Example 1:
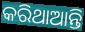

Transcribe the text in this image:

କରିଥାଆନ୍ତି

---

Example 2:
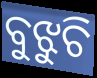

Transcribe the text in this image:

ବୁଝୁଚି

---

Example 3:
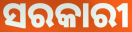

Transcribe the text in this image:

ସରକାରୀ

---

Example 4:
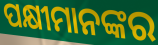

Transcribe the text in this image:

ପକ୍ଷୀମାନଙ୍କର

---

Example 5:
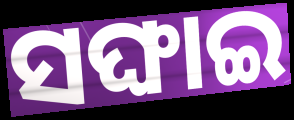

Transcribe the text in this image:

ସଙ୍ଘାଇ